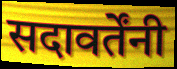
सदावर्तेंनी